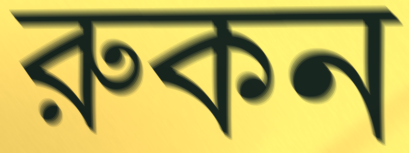
রুকন